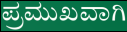
ಪ್ರಮುಖವಾಗಿ